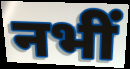
नभीं